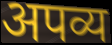
अपव्य